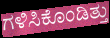
ಗಳಿಸಿಕೊಂಡಿತ್ತು